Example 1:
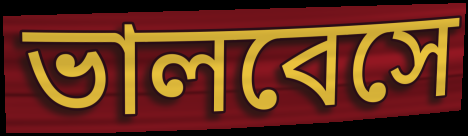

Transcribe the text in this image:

ভালবেসে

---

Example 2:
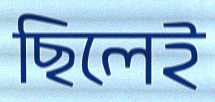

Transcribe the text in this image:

ছিলেই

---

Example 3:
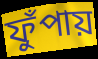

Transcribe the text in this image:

ফুঁপায়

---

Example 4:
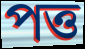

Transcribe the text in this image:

পত্ত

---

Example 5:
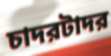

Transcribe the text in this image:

চাদরটাদর